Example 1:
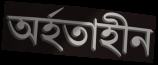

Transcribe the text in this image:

অৰ্হতাহীন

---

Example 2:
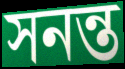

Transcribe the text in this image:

সনন্ত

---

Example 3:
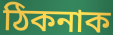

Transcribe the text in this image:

ঠিকনাক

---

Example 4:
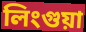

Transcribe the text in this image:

লিংগুয়া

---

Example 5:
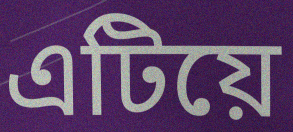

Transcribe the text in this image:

এটিয়ে